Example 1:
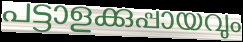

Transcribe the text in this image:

പട്ടാളക്കുപ്പായവും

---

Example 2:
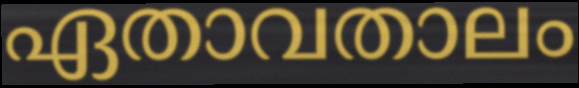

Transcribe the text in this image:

ഏതാവതാലം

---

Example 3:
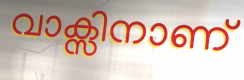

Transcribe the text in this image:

വാക്സിനാണ്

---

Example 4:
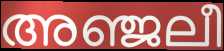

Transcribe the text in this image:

അഞ്ജലീ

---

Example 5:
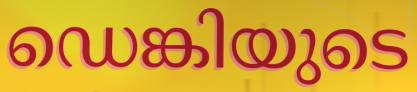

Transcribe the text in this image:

ഡെങ്കിയുടെ